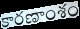
కారణాంశం